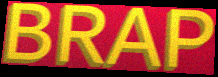
BRAP